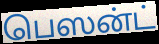
பெஸன்ட்